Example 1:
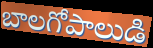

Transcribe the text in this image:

బాలగోపాలుడి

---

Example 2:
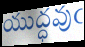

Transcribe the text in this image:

యుద్ధవుఁ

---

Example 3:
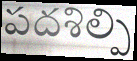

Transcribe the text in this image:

పదశిల్పి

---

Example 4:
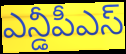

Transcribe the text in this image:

ఎన్డీపీఎస్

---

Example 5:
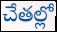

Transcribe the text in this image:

చేతల్లో